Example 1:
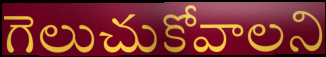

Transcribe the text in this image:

గెలుచుకోవాలని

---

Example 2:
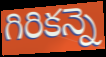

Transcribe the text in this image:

గిరికన్నె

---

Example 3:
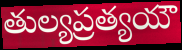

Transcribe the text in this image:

తుల్యప్రత్యయౌ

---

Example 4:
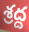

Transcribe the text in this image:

శ్రద్ద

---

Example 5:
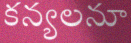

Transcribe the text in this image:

కన్యలనూ